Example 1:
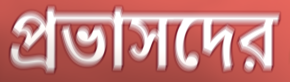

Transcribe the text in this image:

প্রভাসদের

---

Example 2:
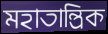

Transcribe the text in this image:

মহাতান্ত্রিক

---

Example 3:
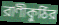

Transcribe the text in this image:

রাণীকুঠির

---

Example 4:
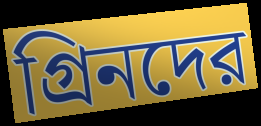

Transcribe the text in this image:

গ্রিনদের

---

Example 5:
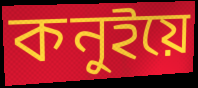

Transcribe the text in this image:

কনুইয়ে